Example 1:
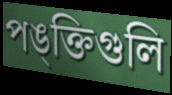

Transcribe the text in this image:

পঙ্‌ক্তিগুলি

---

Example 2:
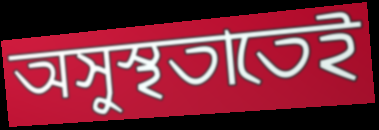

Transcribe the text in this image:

অসুস্থতাতেই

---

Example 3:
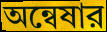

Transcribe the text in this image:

অন্বেষার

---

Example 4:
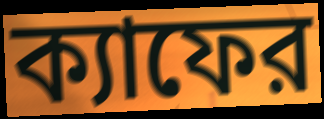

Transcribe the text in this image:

ক্যাফের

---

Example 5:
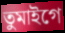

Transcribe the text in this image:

তুমাইগে